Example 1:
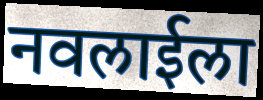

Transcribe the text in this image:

नवलाईला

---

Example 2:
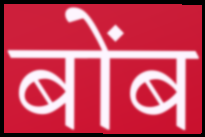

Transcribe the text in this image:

बोंब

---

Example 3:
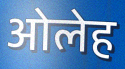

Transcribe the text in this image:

ओलेह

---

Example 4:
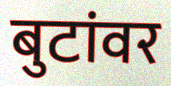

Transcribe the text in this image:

बुटांवर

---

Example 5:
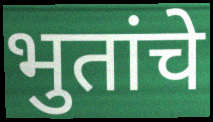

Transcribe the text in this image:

भुतांचे